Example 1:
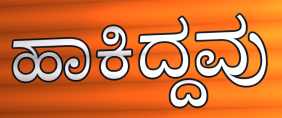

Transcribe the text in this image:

ಹಾಕಿದ್ದವು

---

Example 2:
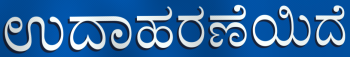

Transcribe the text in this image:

ಉದಾಹರಣೆಯಿದೆ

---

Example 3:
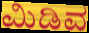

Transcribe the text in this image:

ಮಿಡಿವ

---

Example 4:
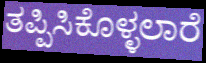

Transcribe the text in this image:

ತಪ್ಪಿಸಿಕೊಳ್ಳಲಾರೆ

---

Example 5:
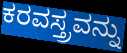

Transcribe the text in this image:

ಕರವಸ್ತ್ರವನ್ನು